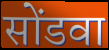
सोंडवा